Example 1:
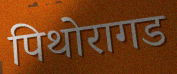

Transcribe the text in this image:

पिथोरागड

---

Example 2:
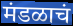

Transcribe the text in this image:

मंडळाचं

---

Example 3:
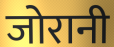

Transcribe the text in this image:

जोरानी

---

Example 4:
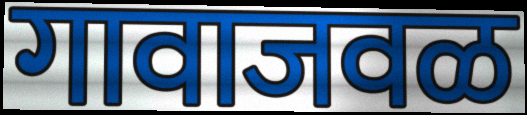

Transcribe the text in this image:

गावाजवळ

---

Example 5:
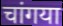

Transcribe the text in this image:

चांगया